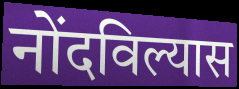
नोंदविल्यास